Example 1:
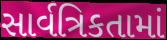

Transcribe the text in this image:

સાર્વત્રિકતામાં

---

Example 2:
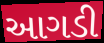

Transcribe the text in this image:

આગડી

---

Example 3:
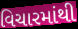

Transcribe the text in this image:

વિચારમાંથી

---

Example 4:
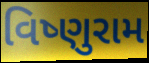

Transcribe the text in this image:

વિષ્ણુરામ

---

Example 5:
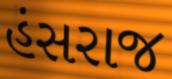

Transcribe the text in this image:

હંસરાજ